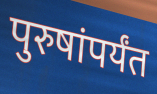
पुरुषांपर्यंत